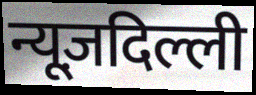
न्यूज़दिल्ली